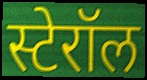
स्टेरॉल